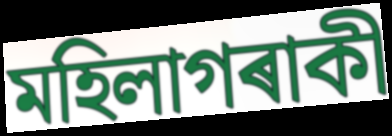
মহিলাগৰাকী